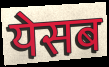
येसब